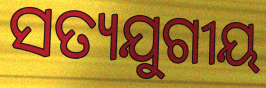
ସତ୍ୟଯୁଗୀୟ